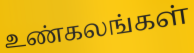
உண்கலங்கள்